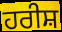
ਹਰੀਸ਼